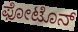
ಫೋಟೊನ್